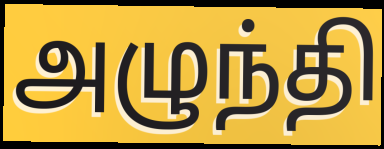
அழுந்தி